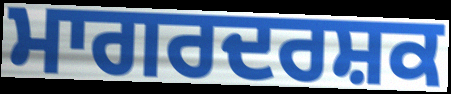
ਮਾਗਰਦਰਸ਼ਕ